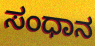
ಸಂಧಾನ